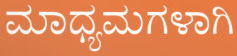
ಮಾಧ್ಯಮಗಳಾಗಿ